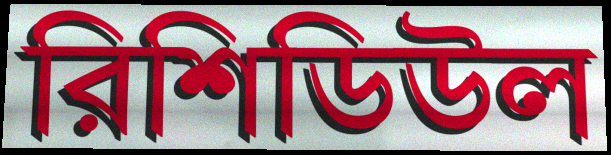
রিশিডিউল